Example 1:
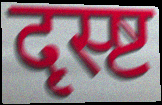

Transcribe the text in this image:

दृस्ष्ट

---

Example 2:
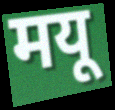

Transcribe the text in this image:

मयू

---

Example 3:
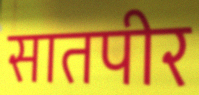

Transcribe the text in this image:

सातपीर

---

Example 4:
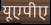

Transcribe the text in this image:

यूएपीए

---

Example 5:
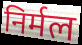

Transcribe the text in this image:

निर्मल